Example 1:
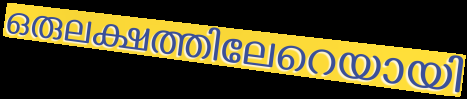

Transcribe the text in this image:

ഒരുലക്ഷത്തിലേറെയായി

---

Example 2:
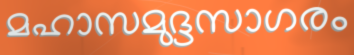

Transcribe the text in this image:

മഹാസമുദ്ദസാഗരം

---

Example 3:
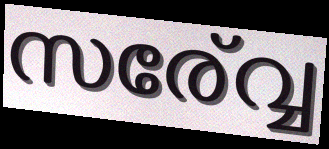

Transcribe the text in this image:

സര്വ്വേ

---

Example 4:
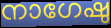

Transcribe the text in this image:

നാഗേഷു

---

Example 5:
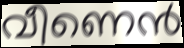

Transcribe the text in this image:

വീണെൻ